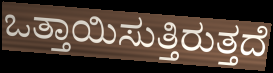
ಒತ್ತಾಯಿಸುತ್ತಿರುತ್ತದೆ